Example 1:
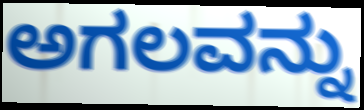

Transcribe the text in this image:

ಅಗಲವನ್ನು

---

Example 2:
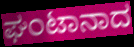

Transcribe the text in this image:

ಘಂಟಾನಾದ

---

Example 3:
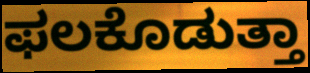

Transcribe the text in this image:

ಫಲಕೊಡುತ್ತಾ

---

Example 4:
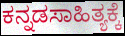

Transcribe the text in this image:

ಕನ್ನಡಸಾಹಿತ್ಯಕ್ಕೆ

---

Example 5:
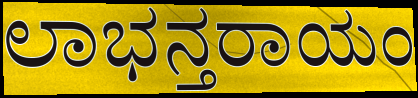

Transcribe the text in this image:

ಲಾಭನ್ತರಾಯಂ